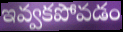
ఇవ్వకపోవడం